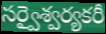
సర్వైశ్వర్యకరీ